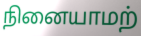
நினையாமற்